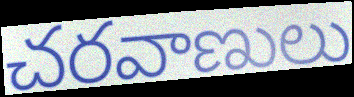
చరవాణులు